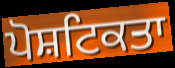
ਪੋਸ਼ਟਿਕਤਾ